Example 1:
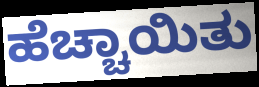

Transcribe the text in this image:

ಹೆಚ್ಚಾಯಿತು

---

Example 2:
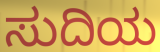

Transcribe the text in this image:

ಸುದಿಯ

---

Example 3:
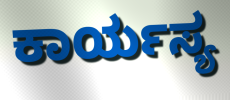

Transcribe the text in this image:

ಕಾರ್ಯಸ್ಯ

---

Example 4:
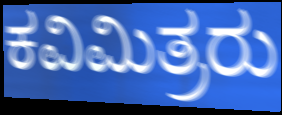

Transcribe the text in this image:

ಕವಿಮಿತ್ರರು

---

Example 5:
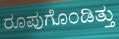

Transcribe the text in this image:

ರೂಪುಗೊಂಡಿತ್ತು